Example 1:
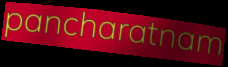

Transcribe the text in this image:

pancharatnam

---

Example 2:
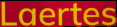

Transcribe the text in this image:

Laertes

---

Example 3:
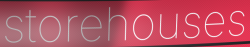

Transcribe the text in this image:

storehouses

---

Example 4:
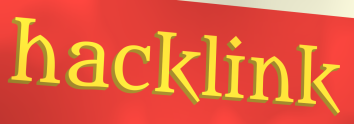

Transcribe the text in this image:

hacklink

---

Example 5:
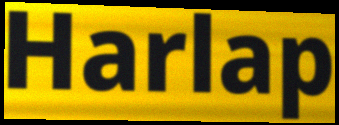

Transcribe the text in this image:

Harlap